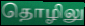
தொழிலு